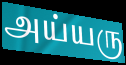
அய்யரு